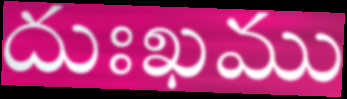
దుఃఖము